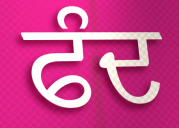
ਫੰਦ